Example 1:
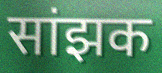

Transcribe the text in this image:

सांझक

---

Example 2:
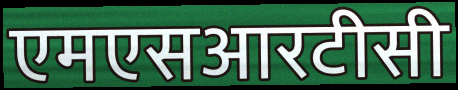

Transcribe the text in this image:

एमएसआरटीसी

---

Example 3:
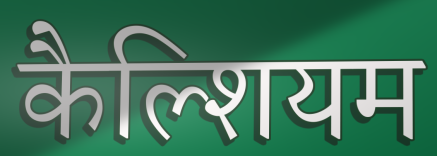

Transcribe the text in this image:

कैल्शियम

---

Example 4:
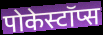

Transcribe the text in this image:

पोकेस्टॉप्स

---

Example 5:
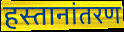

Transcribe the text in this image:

हस्तानांतरण